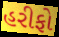
હરીફો